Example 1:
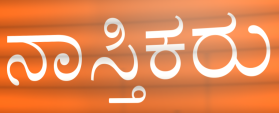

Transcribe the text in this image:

ನಾಸ್ತಿಕರು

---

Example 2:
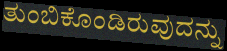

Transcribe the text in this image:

ತುಂಬಿಕೊಂಡಿರುವುದನ್ನು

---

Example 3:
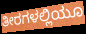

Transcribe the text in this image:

ತೀರಗಳಲ್ಲಿಯೂ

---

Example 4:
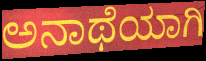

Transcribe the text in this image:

ಅನಾಥೆಯಾಗಿ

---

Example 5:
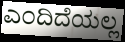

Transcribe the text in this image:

ಎಂದಿದೆಯಲ್ಲ